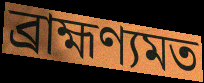
ব্রাহ্মণ্যমত